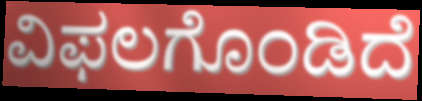
ವಿಫಲಗೊಂಡಿದೆ